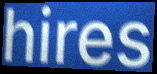
hires